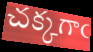
చక్కగాఁ